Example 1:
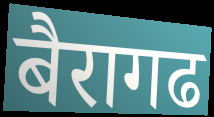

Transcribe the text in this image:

बैरागढ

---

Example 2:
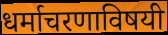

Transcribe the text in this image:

धर्माचरणाविषयी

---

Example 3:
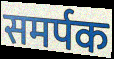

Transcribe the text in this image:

समर्पक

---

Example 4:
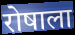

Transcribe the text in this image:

रोषाला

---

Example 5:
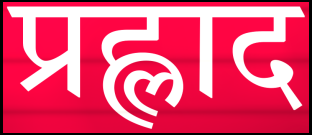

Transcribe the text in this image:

प्रह्लाद